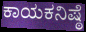
ಕಾಯಕನಿಷ್ಠೆ